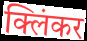
क्लिंकर